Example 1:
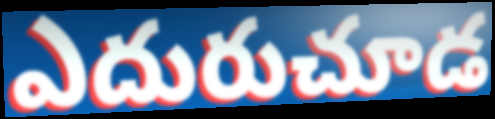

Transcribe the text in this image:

ఎదురుచూడ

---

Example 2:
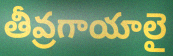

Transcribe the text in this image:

తీవ్రగాయాలై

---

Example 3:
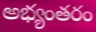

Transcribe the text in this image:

అభ్యంతరం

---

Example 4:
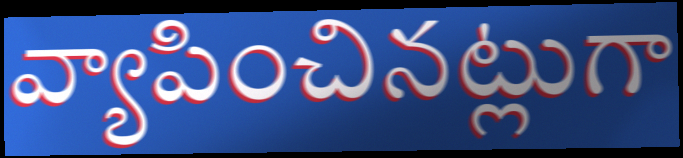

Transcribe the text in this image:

వ్యాపించినట్లుగా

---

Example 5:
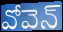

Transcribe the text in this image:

వోవెన్